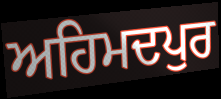
ਅਹਿਮਦਪੁਰ